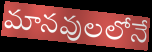
మానవులలోనే